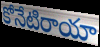
కోనేటిరాయా